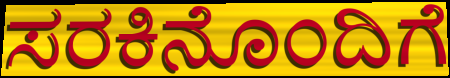
ಸರಕಿನೊಂದಿಗೆ